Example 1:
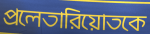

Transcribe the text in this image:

প্রলেতারিয়োতকে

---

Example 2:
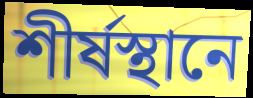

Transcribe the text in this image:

শীর্ষস্থানে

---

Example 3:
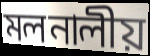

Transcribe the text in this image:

মলনালীয়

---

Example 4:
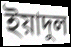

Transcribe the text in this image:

ইয়াদুল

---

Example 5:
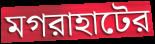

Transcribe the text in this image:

মগরাহাটের